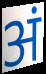
अं